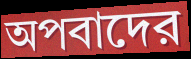
অপবাদের